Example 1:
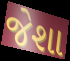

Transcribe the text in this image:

જેશા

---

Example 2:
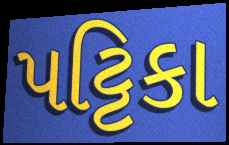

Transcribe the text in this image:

પટ્ટિકા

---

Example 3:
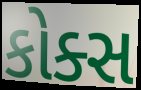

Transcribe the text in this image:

કોક્સ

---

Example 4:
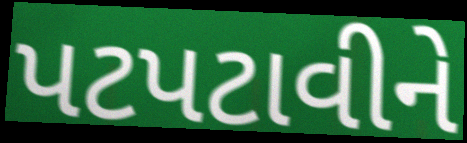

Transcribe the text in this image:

પટપટાવીને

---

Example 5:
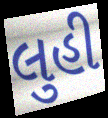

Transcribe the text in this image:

લુહી